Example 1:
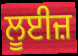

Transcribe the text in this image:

ਲੂਈਜ਼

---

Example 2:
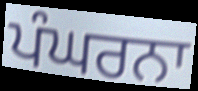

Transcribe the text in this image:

ਪੰਘਰਨਾ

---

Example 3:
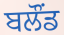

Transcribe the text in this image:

ਬਲੌਂਡ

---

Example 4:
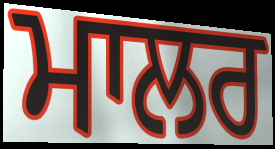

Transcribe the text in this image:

ਮਾਲਰ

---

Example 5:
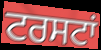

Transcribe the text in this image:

ਟਰਸਟਾਂ